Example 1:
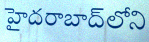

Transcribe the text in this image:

హైదరాబాద్‌లోని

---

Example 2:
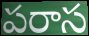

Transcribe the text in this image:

పరాస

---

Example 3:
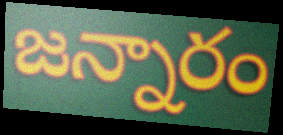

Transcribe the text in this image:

జన్నారం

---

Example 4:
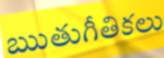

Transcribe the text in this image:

ఋతుగీతికలు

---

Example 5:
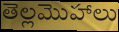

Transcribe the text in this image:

తెల్లమొహాలు